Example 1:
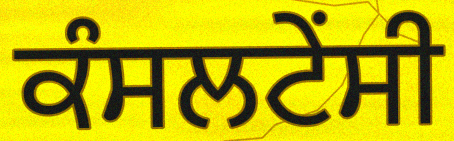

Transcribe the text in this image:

ਕੰਸਲਟੇਂਸੀ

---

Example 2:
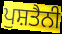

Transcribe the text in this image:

ਪੁਸ਼ਤੈਨੀ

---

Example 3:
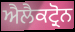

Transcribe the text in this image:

ਐਲੈਕਟ੍ਰੋਨ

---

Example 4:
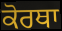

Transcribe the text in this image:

ਕੋਰਥਾ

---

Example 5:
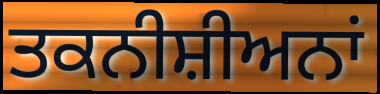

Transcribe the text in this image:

ਤਕਨੀਸ਼ੀਅਨਾਂ